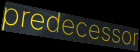
predecessor